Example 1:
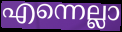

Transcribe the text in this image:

എന്നെല്ലാ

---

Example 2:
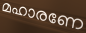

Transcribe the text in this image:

മഹാരണേ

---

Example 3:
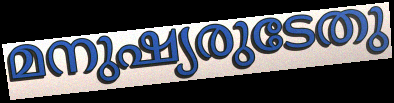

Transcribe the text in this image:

മനുഷ്യരുടേതു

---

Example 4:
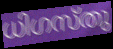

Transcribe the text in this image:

ധിഗസ്തു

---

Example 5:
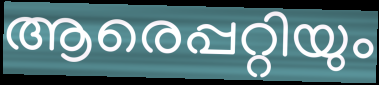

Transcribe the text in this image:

ആരെപ്പറ്റിയും